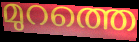
മുറത്തെ